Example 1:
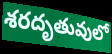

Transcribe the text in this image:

శరదృతువులో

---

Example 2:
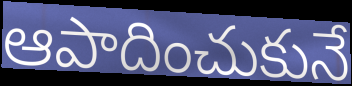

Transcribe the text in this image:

ఆపాదించుకునే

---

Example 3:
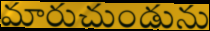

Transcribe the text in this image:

మారుచుండును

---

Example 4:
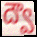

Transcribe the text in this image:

ద్వౌ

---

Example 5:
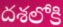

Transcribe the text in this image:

దశలోకి